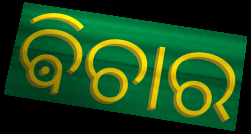
ଵିଚାର